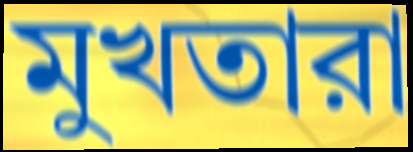
মুখতারা